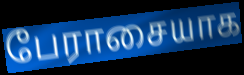
பேராசையாக